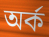
অর্ক